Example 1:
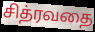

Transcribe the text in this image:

சித்ரவதை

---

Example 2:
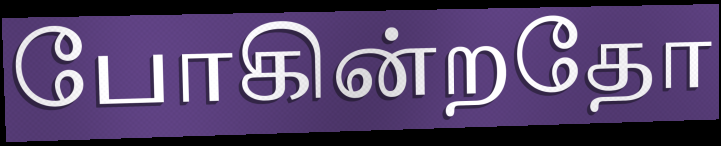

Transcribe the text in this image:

போகின்றதோ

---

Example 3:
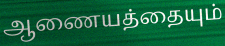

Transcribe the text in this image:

ஆணையத்தையும்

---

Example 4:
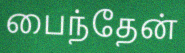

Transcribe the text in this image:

பைந்தேன்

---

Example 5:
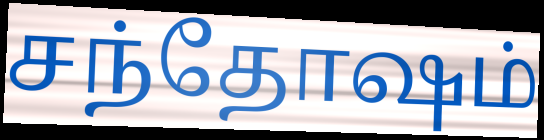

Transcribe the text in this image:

சந்தோஷம்